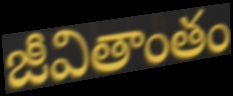
జీవితాంతం